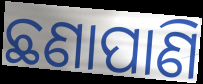
ଛଣାପାଣି